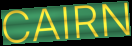
CAIRN